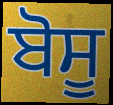
ਬੋਸੂ